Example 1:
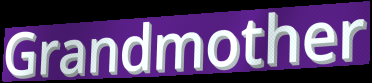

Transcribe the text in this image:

Grandmother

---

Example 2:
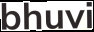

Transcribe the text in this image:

bhuvi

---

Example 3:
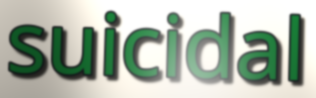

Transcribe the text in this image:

suicidal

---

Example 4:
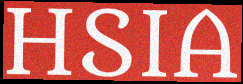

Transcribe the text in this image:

HSIA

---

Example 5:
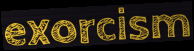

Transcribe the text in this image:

exorcism